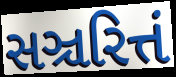
સઞ્ચરિત્તં